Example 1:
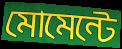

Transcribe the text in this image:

মোমেন্টে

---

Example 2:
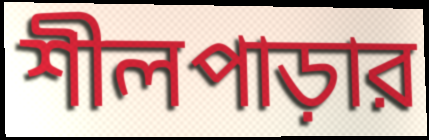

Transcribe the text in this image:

শীলপাড়ার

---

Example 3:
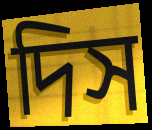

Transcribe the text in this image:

দিস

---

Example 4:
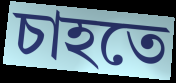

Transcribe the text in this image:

চাহতে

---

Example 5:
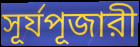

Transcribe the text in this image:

সূর্যপূজারী